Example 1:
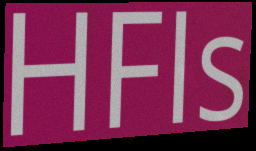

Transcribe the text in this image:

HFIs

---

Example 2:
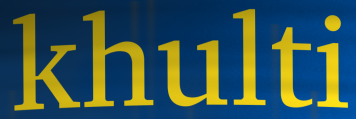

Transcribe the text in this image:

khulti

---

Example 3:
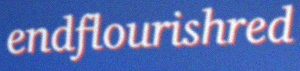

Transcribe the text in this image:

endflourishred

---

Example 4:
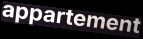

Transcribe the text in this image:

appartement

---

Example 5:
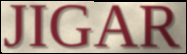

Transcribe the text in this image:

JIGAR